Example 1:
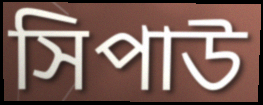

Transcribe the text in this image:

সিপাউ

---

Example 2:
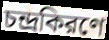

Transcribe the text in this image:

চন্দ্রকিরণে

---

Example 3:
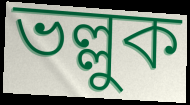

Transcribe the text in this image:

ভল্লুক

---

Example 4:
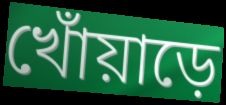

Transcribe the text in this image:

খোঁয়াড়ে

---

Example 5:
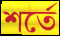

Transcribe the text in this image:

শর্তে